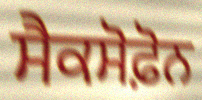
ਸੈਕਸੋਫ਼ੋਨ